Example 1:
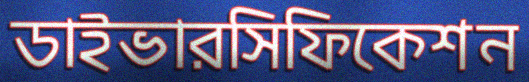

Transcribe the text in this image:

ডাইভারসিফিকেশন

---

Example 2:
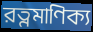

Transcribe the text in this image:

রত্নমাণিক্য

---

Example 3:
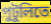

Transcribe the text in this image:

পুটুলিতে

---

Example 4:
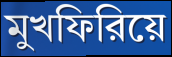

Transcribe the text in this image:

মুখফিরিয়ে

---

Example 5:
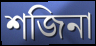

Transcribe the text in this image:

শজিনা